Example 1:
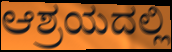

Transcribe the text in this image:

ಆಶ್ರಯದಲ್ಲಿ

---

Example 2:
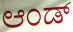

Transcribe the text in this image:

ಆಂಡ್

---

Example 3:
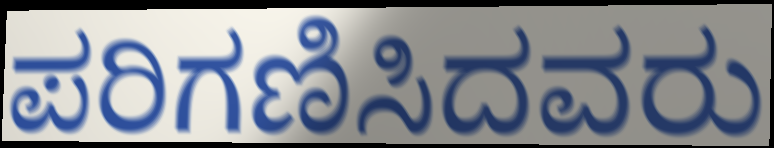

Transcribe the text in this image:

ಪರಿಗಣಿಸಿದವರು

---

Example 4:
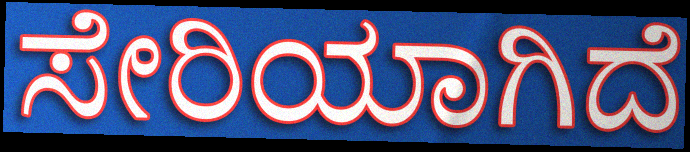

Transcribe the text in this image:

ಸೇರಿಯಾಗಿದೆ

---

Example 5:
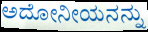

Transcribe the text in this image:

ಅದೋನೀಯನನ್ನು